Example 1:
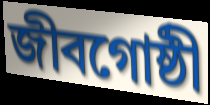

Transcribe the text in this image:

জীবগোষ্ঠী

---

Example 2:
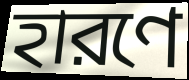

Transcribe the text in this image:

হারণে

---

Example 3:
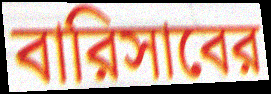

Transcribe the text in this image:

বারিসাবের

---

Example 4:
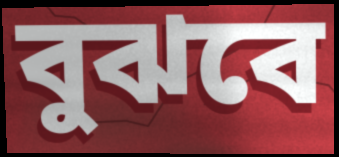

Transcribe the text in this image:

বুঝবে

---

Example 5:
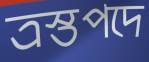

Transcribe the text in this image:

ত্রস্তপদে